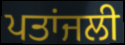
ਪਤਾਂਜਲੀ